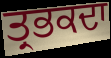
ਤ੍ਰਭਕਦਾ